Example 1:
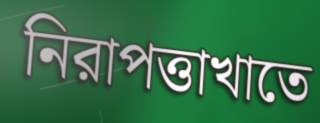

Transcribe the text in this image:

নিরাপত্তাখাতে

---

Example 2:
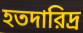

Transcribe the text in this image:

হতদারিদ্র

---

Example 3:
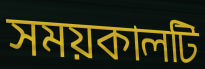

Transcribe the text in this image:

সময়কালটি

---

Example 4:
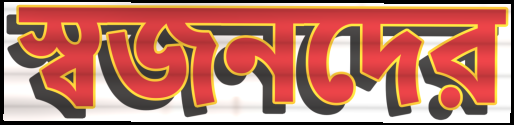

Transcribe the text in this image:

স্বজনদের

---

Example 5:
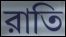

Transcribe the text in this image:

রাতি